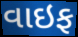
વાઇફ